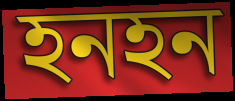
হনহন